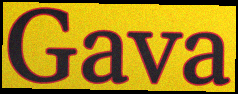
Gava